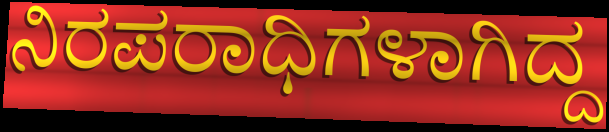
ನಿರಪರಾಧಿಗಳಾಗಿದ್ದ